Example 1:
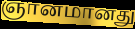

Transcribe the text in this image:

ஞானமானது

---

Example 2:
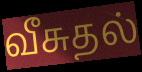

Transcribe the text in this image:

வீசுதல்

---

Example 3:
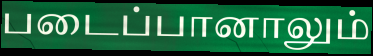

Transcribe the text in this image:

படைப்பானாலும்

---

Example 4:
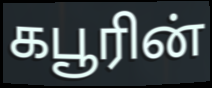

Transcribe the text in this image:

கபூரின்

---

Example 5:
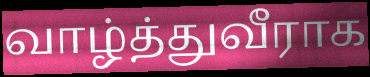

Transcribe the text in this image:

வாழ்த்துவீராக